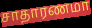
சாதாரணமா